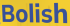
Bolish